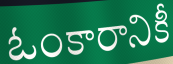
ఓంకారానికీ